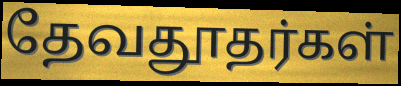
தேவதூதர்கள்